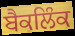
ਬੈਕਲਿੰਕ